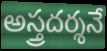
అస్త్రదర్శనే